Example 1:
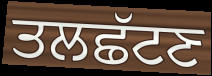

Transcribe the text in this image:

ਤਲਛੱਟਣ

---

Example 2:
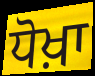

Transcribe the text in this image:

ਧੋਖ਼ਾ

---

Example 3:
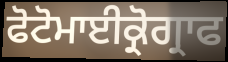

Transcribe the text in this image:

ਫੋਟੋਮਾਈਕ੍ਰੋਗ੍ਰਾਫ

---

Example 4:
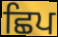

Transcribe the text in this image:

ਛਿਪ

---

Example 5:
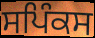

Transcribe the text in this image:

ਸਪਿੰਕਸ